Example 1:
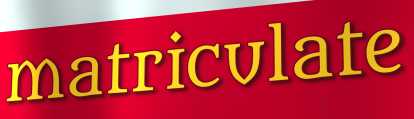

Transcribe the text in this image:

matriculate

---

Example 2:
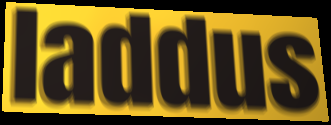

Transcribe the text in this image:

laddus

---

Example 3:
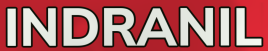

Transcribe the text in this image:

INDRANIL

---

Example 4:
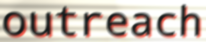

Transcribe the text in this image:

outreach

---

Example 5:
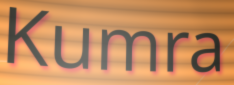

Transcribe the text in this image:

Kumra